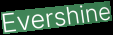
Evershine